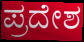
ಪ್ರದೇಶ